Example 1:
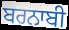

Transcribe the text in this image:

ਬਰਨਾਬੀ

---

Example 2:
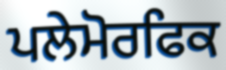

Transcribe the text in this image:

ਪਲੇਮੋਰਫਿਕ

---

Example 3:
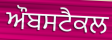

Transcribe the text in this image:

ਔਬਸਟੈਕਲ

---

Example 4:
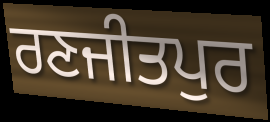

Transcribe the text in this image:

ਰਣਜੀਤਪੁਰ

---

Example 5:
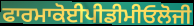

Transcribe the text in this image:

ਫਾਰਮਾਕੋਈਪੀਡੀਮੀਓਲੋਜੀ